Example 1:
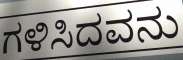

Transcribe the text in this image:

ಗಳಿಸಿದವನು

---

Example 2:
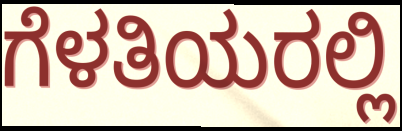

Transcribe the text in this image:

ಗೆಳತಿಯರಲ್ಲಿ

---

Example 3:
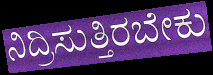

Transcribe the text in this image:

ನಿದ್ರಿಸುತ್ತಿರಬೇಕು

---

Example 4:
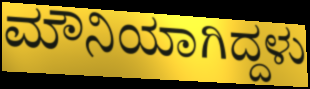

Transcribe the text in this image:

ಮೌನಿಯಾಗಿದ್ದಳು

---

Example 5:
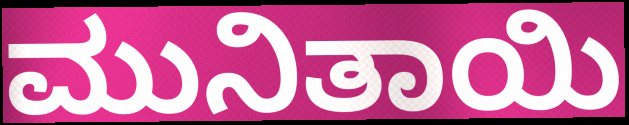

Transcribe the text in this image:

ಮುನಿತಾಯಿ